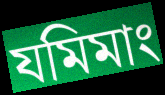
যমিমাং